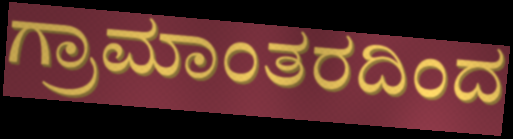
ಗ್ರಾಮಾಂತರದಿಂದ